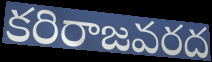
కరిరాజవరద